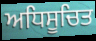
ਅਧਿਸੂਚਿਤ